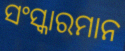
ସଂସ୍କାରମାନ